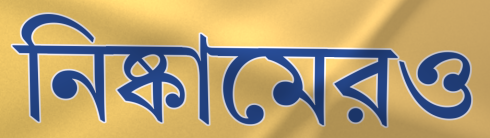
নিষ্কামেরও